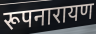
रूपनारायण